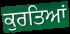
ਕੁਰਤਿਆਂ